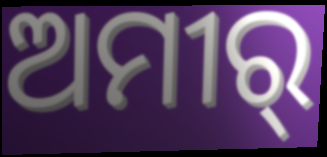
ଅମୀର୍